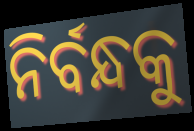
ନିର୍ବନ୍ଧକୁ